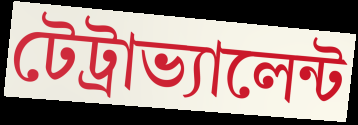
টেট্রাভ্যালেন্ট